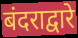
बंदराद्वारे